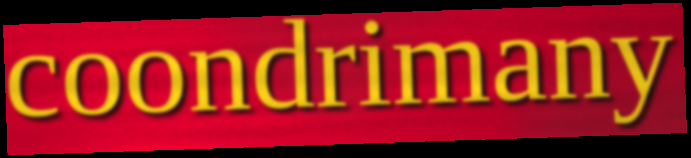
coondrimany